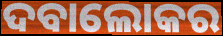
ଦବାଲୋକର